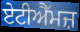
ਏਟੀਐੱਮਜ਼